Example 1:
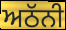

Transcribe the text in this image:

ਅਠੱਨੀ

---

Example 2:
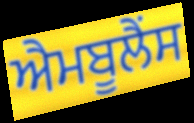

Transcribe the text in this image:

ਐਮਬੂਲੈਂਸ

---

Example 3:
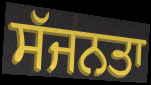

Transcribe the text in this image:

ਸੱਜਨਤਾ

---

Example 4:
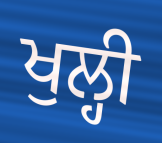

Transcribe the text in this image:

ਖੁਲ੍ਹੀ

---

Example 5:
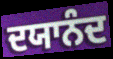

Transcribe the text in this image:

ਦਯਾਨੰਦ